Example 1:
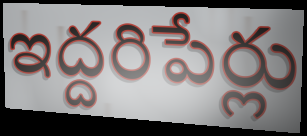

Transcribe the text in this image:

ఇద్దరిపేర్లు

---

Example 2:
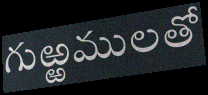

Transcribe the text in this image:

గుఱ్ఱములతో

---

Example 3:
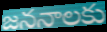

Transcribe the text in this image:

జననాలకు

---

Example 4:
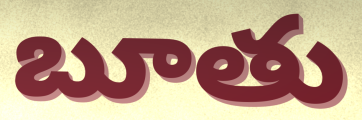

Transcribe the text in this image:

బూతు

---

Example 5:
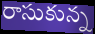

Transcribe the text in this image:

రాసుకున్న